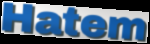
Hatem